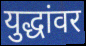
युद्धांवर